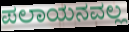
ಪಲಾಯನವಲ್ಲ